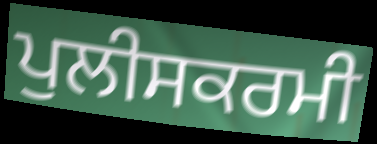
ਪੁਲੀਸਕਰਮੀ